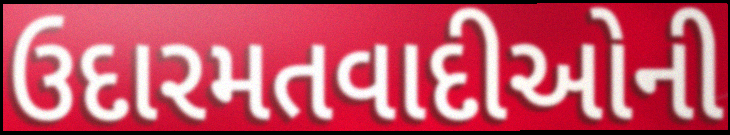
ઉદારમતવાદીઓની